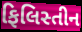
ફિલિસ્તીન